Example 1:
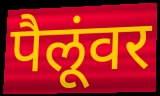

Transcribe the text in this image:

पैलूंवर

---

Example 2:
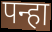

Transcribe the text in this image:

पन्हा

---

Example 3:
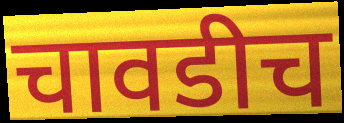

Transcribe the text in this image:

चावडीच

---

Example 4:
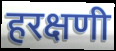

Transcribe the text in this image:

हरक्षणी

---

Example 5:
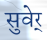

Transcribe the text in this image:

सुवेर्